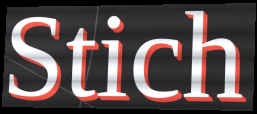
Stich